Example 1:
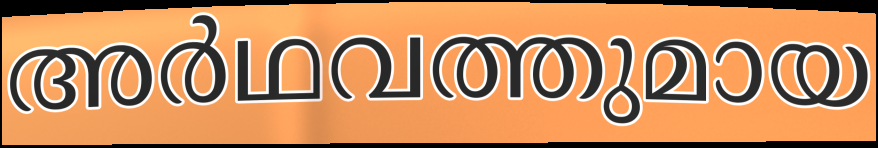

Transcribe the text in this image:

അർഥവത്തുമായ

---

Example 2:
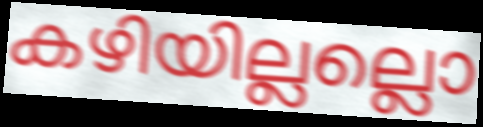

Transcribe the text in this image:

കഴിയില്ലല്ലൊ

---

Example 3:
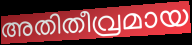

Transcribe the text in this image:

അതിതീവ്രമായ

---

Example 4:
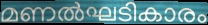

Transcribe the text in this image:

മണൽഘടികാരം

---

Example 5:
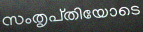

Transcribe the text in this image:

സംതൃപ്‌തിയോടെ